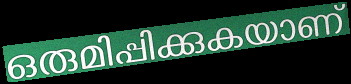
ഒരുമിപ്പിക്കുകയാണ്